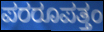
ಪರರೂಪತ್ತಂ